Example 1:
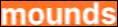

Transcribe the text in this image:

mounds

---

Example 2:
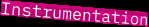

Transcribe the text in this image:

Instrumentation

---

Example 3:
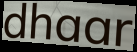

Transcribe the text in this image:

dhaar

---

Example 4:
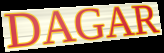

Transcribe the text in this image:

DAGAR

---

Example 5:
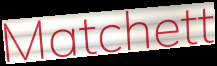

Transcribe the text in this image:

Matchett